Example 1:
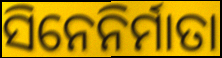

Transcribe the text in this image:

ସିନେନିର୍ମାତା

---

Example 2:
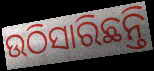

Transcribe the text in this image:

ଉଠିସାରିଛନ୍ତି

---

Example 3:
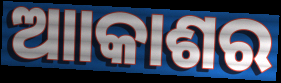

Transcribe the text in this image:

ଆାକାଶର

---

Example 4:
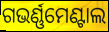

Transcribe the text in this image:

ଗଭର୍ଣ୍ଣମେଣ୍ଟାଲ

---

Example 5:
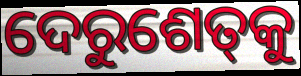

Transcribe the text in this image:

ଦେରୁଶେତ୍‌କୁ